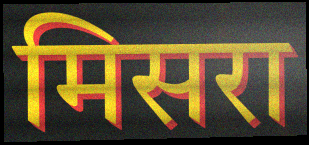
मिसरा